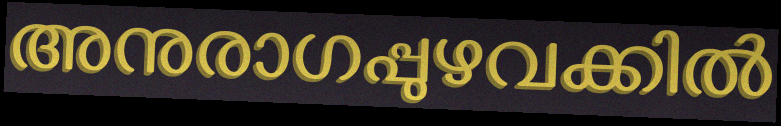
അനുരാഗപ്പുഴവക്കിൽ